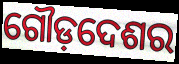
ଗୌଡ଼ଦେଶର